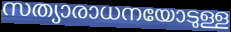
സത്യാരാധനയോടുള്ള